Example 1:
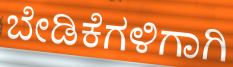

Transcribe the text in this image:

ಬೇಡಿಕೆಗಳಿಗಾಗಿ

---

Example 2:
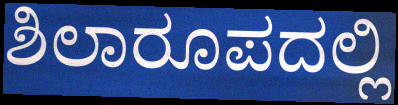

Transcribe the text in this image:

ಶಿಲಾರೂಪದಲ್ಲಿ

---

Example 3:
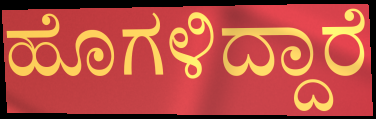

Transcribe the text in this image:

ಹೊಗಳಿದ್ದಾರೆ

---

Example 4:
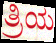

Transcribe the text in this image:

ತ್ರಿಯ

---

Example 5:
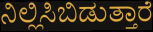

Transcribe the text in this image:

ನಿಲ್ಲಿಸಿಬಿಡುತ್ತಾರೆ